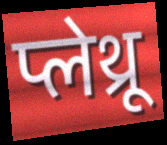
प्लेथ्रू